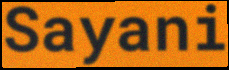
Sayani